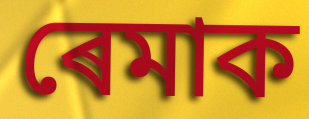
ৰেমাক